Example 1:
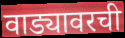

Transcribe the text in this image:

वाड्यावरची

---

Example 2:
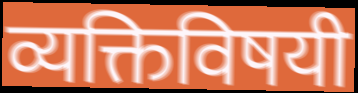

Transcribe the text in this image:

व्यक्तिविषयी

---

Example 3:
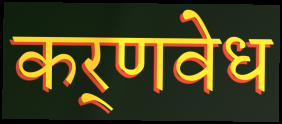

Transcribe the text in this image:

कर्णवेध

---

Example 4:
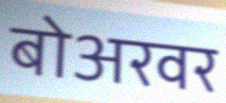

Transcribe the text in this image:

बोअरवर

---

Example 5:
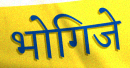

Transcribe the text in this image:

भोगिजे